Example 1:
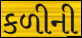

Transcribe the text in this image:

કળીની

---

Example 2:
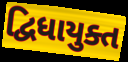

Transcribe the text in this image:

દ્વિધાયુક્ત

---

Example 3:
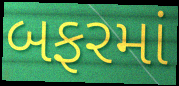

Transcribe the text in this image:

બફરમાં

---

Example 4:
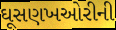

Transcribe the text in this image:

ઘૂસણખઓરીની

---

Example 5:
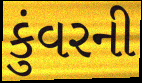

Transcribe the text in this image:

કુંવરની